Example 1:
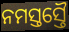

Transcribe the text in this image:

ନମସ୍ତସ୍ତୈ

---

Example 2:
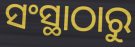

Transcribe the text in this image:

ସଂସ୍ଥାଠାରୁ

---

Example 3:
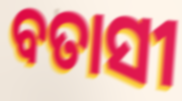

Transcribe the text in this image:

ବତାସୀ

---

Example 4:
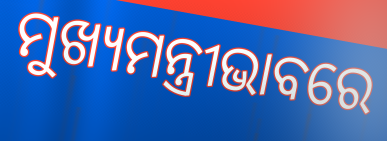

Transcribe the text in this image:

ମୁଖ୍ୟମନ୍ତ୍ରୀଭାବରେ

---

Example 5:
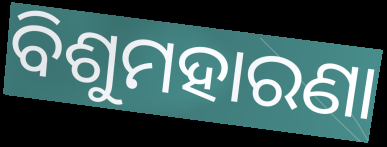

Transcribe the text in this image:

ବିଶୁମହାରଣା